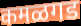
कमळगड